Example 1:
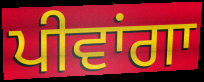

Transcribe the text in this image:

ਪੀਵਾਂਗਾ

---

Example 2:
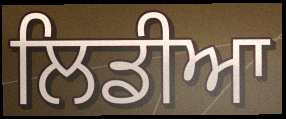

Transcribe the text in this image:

ਲਿਡੀਆ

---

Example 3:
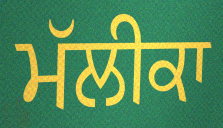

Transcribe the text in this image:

ਮੱਲੀਕਾ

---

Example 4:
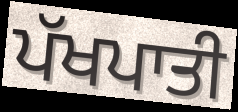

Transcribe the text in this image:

ਪੱਖਪਾਤੀ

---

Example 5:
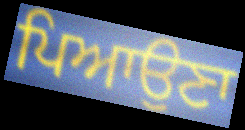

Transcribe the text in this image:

ਪਿਆਉਣਾ